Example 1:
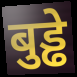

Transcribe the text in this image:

बुड्ढे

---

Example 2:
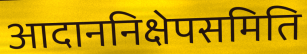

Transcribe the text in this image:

आदाननिक्षेपसमिति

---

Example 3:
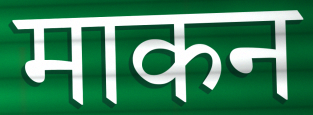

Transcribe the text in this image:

माकन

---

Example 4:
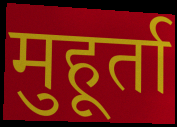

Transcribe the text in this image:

मुहूर्ता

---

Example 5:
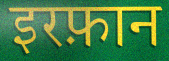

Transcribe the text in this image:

इरफ़ान